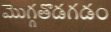
మొగ్గతొడగడం